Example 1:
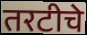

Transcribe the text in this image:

तरटीचे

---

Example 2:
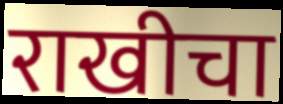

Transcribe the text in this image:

राखीचा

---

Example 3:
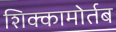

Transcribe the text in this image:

शिक्कामोर्तब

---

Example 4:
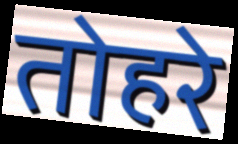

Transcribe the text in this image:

तोहरे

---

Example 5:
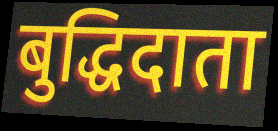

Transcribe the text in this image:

बुद्धिदाता